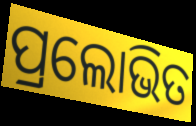
ପ୍ରଲୋଭିତ